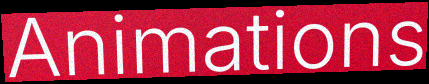
Animations